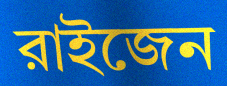
রাইজেন